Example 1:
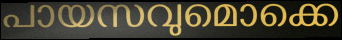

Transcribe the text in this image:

പായസവുമൊക്കെ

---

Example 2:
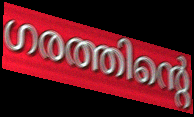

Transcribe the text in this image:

ഗരത്തിന്റെ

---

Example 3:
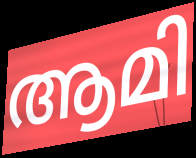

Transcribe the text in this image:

ആമി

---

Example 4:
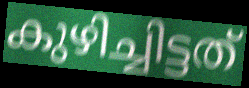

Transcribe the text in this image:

കുഴിച്ചിട്ടത്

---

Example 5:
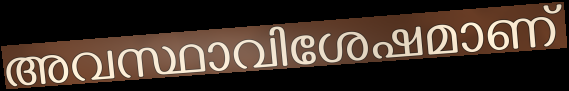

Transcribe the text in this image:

അവസ്ഥാവിശേഷമാണ്